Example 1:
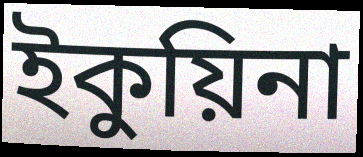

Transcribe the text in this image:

ইকুয়িনা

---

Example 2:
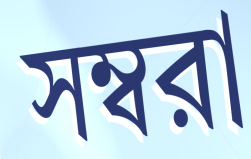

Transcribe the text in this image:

সম্বরা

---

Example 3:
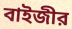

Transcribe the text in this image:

বাইজীর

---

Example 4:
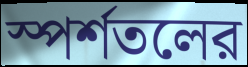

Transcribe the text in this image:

স্পর্শতলের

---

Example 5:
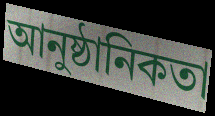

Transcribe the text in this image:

আনুষ্ঠানিকতা